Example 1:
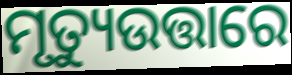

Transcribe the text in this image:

ମୃତ୍ୟୁଉତ୍ତାରେ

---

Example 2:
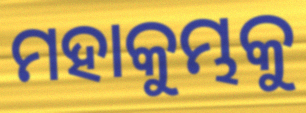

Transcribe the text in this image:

ମହାକୁମ୍ଭକୁ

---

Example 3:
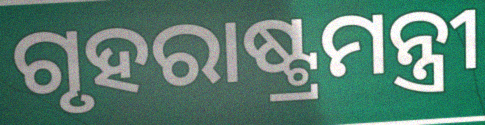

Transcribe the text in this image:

ଗୃହରାଷ୍ଟ୍ରମନ୍ତ୍ରୀ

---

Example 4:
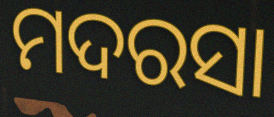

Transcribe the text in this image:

ମଦରସା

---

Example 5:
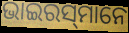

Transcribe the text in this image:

ଭାଇରସ୍‌ମାନେ